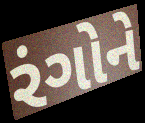
રંગોને